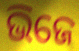
ଭିଜେ